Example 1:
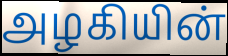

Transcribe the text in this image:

அழகியின்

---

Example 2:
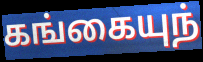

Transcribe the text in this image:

கங்கையுந்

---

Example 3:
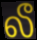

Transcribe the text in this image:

லீ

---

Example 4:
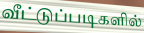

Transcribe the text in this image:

வீட்டுப்படிகளில்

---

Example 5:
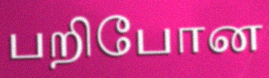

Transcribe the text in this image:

பறிபோன